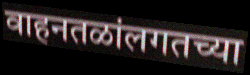
वाहनतळांलगतच्या